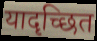
यादृच्छित